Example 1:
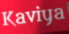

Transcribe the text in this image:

Kaviya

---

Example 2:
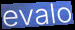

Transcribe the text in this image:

evalo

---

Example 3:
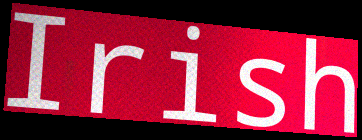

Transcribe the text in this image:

Irish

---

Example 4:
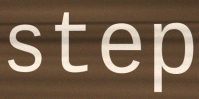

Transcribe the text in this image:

step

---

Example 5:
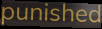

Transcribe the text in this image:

punished